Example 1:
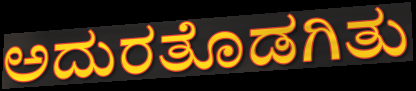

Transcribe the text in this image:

ಅದುರತೊಡಗಿತು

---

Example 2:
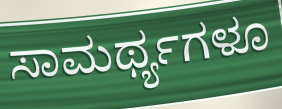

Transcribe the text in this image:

ಸಾಮರ್ಥ್ಯಗಳೂ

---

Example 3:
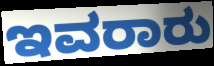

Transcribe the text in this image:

ಇವರಾರು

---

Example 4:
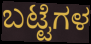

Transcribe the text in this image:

ಬಟ್ಟೆಗಳ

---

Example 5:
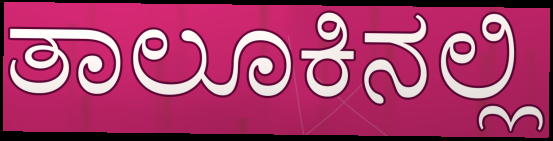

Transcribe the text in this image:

ತಾಲೂಕಿನಲ್ಲಿ